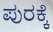
ಪುರಕ್ಕೆ